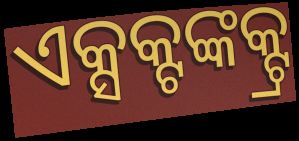
ଏକ୍ସକ୍ଟଙ୍କକ୍ଟ୍ର